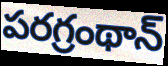
పరగ్రంథాన్